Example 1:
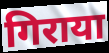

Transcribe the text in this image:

गिराया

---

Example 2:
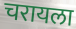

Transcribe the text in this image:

चरायला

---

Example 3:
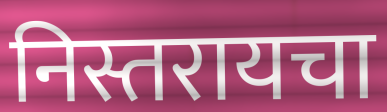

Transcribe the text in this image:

निस्तरायचा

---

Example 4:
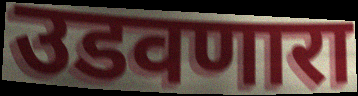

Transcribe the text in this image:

उडवणारा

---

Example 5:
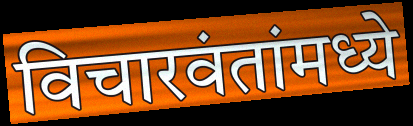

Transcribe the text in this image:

विचारवंतांमध्ये